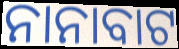
ନାନାବାଟ